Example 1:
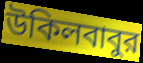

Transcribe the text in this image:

উকিলবাবুর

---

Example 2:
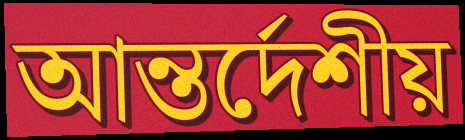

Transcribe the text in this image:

আন্তর্দেশীয়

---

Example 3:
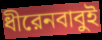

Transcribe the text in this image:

ধীরেনবাবুই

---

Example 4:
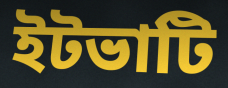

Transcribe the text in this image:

ইটভাটি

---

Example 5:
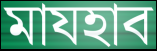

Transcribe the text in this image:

মাযহাব